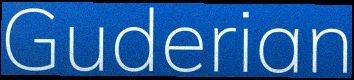
Guderian